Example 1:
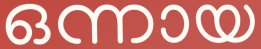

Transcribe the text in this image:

ഒന്നായ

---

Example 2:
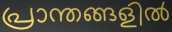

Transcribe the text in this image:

പ്രാന്തങ്ങളിൽ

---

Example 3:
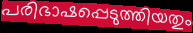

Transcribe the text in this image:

പരിഭാഷപ്പെടുത്തിയതും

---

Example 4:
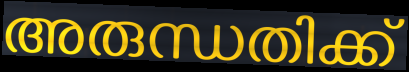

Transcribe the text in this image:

അരുന്ധതിക്ക്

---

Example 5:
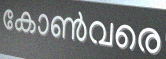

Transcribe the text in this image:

കോൺവരെ